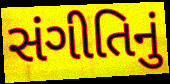
સંગીતિનું